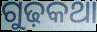
ଗୁଢ଼କଥା